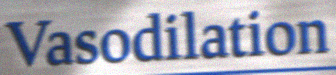
Vasodilation